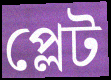
প্লেট